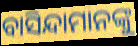
ବାସିନ୍ଦାମାନଙ୍କୁ